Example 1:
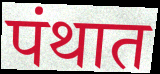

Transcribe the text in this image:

पंथात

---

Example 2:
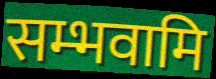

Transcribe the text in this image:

सम्भवामि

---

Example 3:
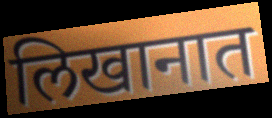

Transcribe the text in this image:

लिखानात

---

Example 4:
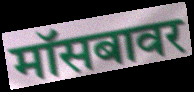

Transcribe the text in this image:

मॉसबावर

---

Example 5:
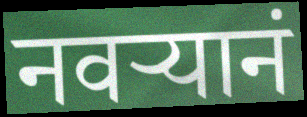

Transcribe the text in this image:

नवऱ्यानं